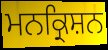
ਮਨਕ੍ਰਿਸ਼ਨ